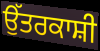
ਉੱਤਰਕਾਸ਼ੀ